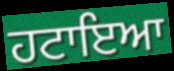
ਹਟਾਇਆ